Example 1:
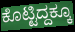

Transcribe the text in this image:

ಕೊಟ್ಟಿದ್ದಕ್ಕೂ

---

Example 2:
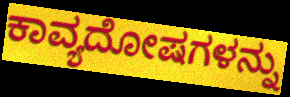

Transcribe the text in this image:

ಕಾವ್ಯದೋಷಗಳನ್ನು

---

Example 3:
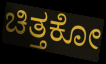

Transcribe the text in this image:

ಚಿತ್ತಕೋ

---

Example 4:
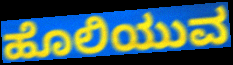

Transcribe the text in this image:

ಹೊಲಿಯುವ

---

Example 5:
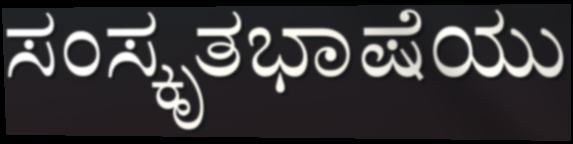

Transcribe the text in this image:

ಸಂಸ್ಕೃತಭಾಷೆಯು